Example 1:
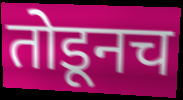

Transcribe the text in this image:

तोडूनच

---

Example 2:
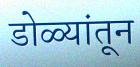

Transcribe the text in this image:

डोळ्यांतून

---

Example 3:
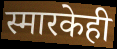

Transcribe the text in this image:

स्मारकेही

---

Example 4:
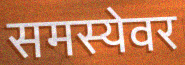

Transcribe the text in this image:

समस्येवर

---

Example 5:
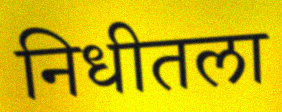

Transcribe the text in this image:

निधीतला